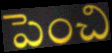
పెంచి